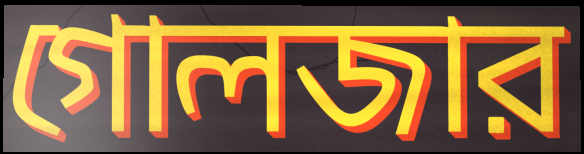
গোলজার